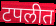
टपलीत